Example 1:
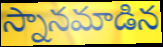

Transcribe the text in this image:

స్నానమాడిన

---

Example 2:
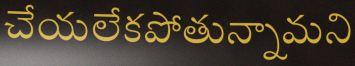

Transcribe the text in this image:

చేయలేకపోతున్నామని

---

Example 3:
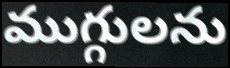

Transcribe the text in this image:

ముగ్గులను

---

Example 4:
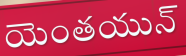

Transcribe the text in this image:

యెంతయున్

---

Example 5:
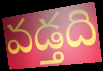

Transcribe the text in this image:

వడ్తది